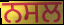
ਨਸਲ